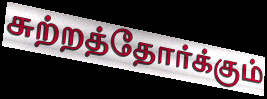
சுற்றத்தோர்க்கும்